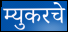
म्युकरचे